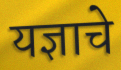
यज्ञाचे